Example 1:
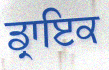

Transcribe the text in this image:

ਡ੍ਰਾਇਕ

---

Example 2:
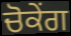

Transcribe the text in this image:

ਚੋਕੇਂਗ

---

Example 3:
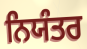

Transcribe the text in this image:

ਨਿਯੰਤਰ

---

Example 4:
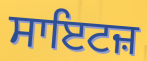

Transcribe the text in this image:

ਸਾਇਟਜ਼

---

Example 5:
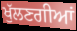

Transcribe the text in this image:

ਖੁੱਲਣਗੀਆਂ